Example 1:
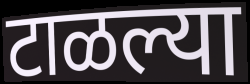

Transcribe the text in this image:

टाळल्या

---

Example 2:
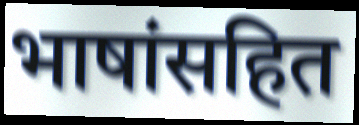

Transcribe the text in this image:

भाषांसहित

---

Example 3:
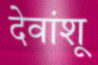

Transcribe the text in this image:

देवांशू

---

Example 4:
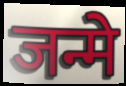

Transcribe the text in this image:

जन्मे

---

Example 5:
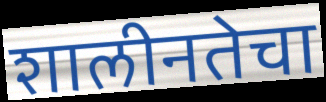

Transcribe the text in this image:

शालीनतेचा